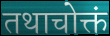
तथाचोक्तं